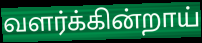
வளர்க்கின்றாய்